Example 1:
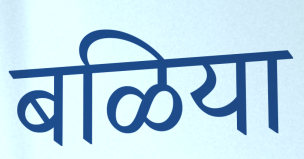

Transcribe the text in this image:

बळिया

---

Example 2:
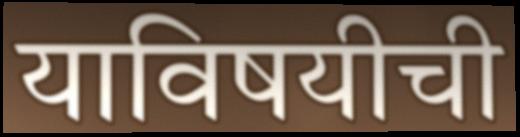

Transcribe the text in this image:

याविषयीची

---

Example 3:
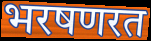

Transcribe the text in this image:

भरषणरत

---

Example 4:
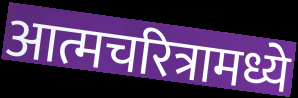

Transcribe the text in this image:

आत्मचरित्रामध्ये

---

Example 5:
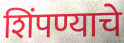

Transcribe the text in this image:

शिंपण्याचे